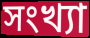
সংখ্যা